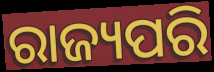
ରାଜ୍ୟପରି